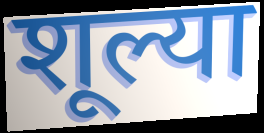
शूल्या